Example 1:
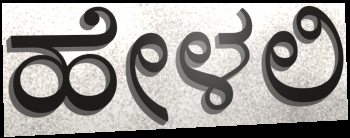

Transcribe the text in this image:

ಹೇಳಲಿ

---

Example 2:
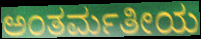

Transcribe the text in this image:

ಅಂತರ್ಮತೀಯ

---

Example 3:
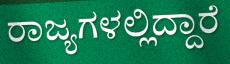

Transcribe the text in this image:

ರಾಜ್ಯಗಳಲ್ಲಿದ್ದಾರೆ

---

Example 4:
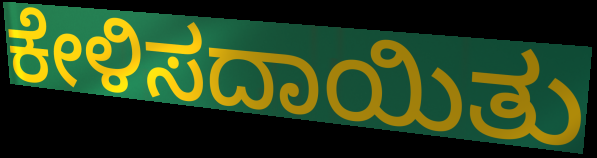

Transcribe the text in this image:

ಕೇಳಿಸದಾಯಿತು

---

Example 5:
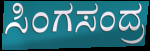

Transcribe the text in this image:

ಸಿಂಗಸಂದ್ರ